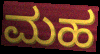
ಮಹ